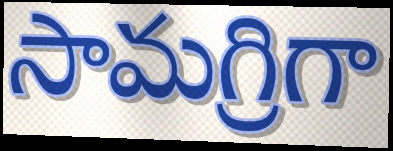
సామగ్రిగా